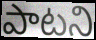
పాటని